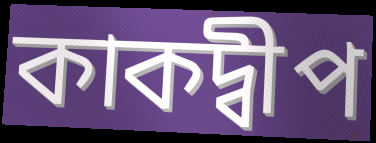
কাকদ্বীপ